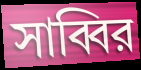
সাব্বির